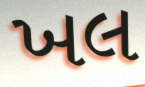
ખલ